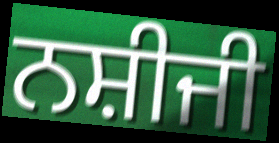
ਨਸ਼ੀਜੀ